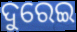
ଦୁରେଇ